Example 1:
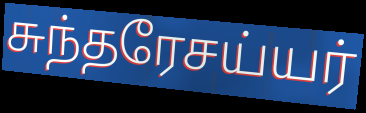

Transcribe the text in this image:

சுந்தரேசய்யர்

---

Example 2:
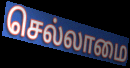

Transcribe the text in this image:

செல்லாமை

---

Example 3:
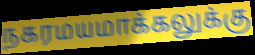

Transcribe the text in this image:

நகரமயமாக்கலுக்கு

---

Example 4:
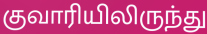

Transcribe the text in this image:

குவாரியிலிருந்து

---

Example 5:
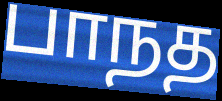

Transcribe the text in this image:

பாநத